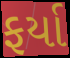
ફર્યા